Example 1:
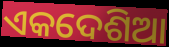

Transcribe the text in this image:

ଏକଦେଶିଆ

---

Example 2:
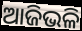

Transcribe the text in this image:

ଆଜିଭଳି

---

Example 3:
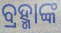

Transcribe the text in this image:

ବ୍ରହ୍ମାଙ୍କ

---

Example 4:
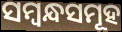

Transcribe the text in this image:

ସମ୍ୱନ୍ଧସମୂହ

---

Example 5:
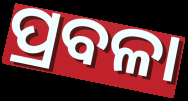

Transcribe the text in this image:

ପ୍ରବଳା